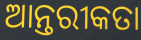
ଆନ୍ତରୀକତା